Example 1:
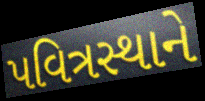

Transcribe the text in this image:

પવિત્રસ્થાને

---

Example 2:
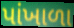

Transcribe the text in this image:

પાંખાળા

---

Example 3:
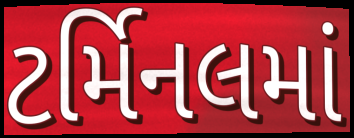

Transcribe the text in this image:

ટર્મિનલમાં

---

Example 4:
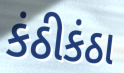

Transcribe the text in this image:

કંઠીકંઠા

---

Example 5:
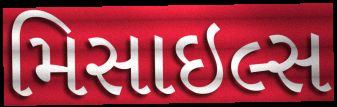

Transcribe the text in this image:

મિસાઇલ્સ